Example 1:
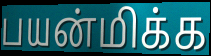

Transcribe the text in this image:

பயன்மிக்க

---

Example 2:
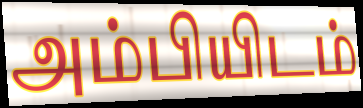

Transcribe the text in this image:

அம்பியிடம்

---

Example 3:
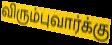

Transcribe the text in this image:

விரும்புவார்க்கு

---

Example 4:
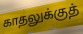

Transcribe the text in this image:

காதலுக்குத்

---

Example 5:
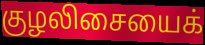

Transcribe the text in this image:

குழலிசையைக்